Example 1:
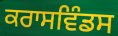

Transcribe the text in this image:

ਕਰਾਸਵਿੰਡਸ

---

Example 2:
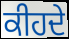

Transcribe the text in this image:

ਕੀਹਦੇ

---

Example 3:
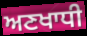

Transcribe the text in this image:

ਅਣਖਾਧੀ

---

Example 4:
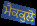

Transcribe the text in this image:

ਮੈਕਕੁਲੋ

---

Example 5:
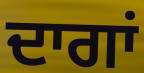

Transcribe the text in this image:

ਦਾਗਾਂ